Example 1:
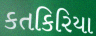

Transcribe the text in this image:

કતકિરિયા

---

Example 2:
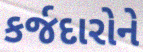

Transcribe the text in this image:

કર્જદારોને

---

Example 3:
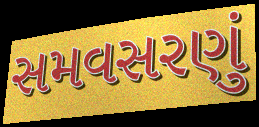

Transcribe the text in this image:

સમવસરણું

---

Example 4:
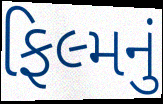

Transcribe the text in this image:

ફિલ્મનું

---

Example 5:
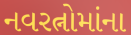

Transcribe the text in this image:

નવરત્નોમાંના